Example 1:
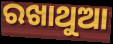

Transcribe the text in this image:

ରଖାଥୁଆ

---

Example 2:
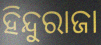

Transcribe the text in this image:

ହିନ୍ଦୁରାଜା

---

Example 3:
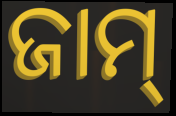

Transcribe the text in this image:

ଜାମ୍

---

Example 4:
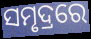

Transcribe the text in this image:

ସମୃଦ୍ରରେ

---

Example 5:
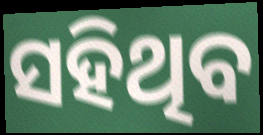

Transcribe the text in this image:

ସହିଥିବ